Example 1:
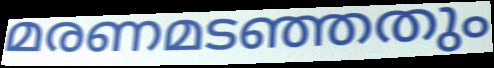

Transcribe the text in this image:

മരണമടഞ്ഞതും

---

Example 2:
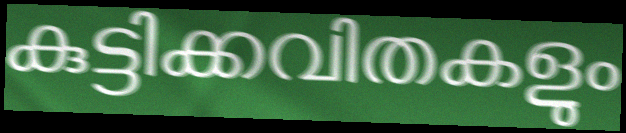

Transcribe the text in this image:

കുട്ടിക്കവിതകളും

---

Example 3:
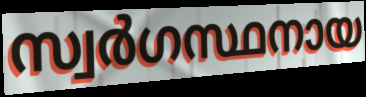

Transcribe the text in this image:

സ്വർഗസ്ഥനായ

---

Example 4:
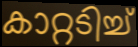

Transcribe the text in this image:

കാറ്റടിച്ച്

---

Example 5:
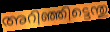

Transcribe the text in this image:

അറിഞ്ഞിട്ടെന്തു